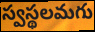
స్వస్థలమగు